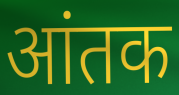
आंतक